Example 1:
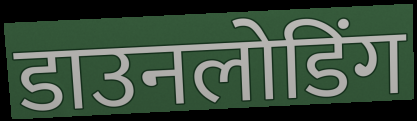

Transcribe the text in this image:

डाउनलोडिंग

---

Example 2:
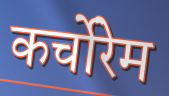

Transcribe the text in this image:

कर्चोरेम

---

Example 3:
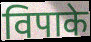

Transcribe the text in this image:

विपाके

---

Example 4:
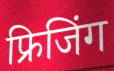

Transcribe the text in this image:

फ्रिजिंग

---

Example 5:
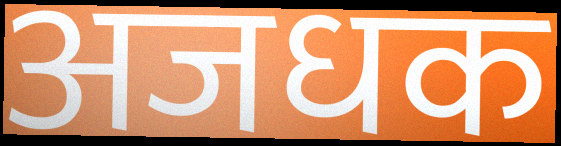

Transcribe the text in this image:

अजधक